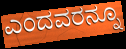
ಎಂದವರನ್ನೂ